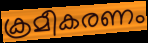
ക്രമീകരണം